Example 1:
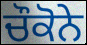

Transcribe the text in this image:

ਚੌਕੋਨੇ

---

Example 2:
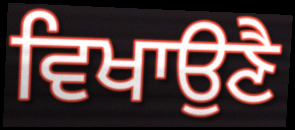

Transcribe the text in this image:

ਵਿਖਾਉਣੈ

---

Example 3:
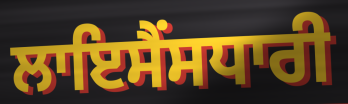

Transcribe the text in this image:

ਲਾਇਸੈਂਸਧਾਰੀ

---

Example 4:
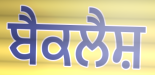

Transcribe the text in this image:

ਬੈਕਲੈਸ਼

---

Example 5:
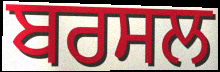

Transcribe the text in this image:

ਬਰਸਲ